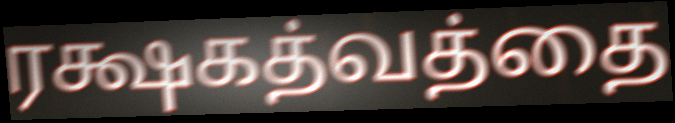
ரக்ஷகத்வத்தை